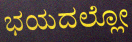
ಭಯದಲ್ಲೋ